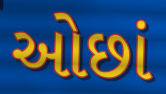
ઓછાં